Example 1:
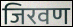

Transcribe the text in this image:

जिरवण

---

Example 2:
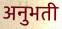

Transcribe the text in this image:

अनुभती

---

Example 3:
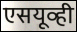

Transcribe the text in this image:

एसयूव्ही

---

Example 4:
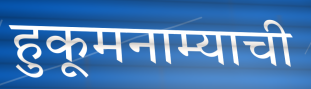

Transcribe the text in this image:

हुकूमनाम्याची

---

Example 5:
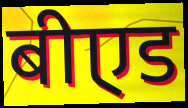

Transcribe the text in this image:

बीएड